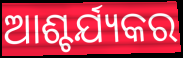
ଆଶ୍ଚର୍ଯ୍ୟକର